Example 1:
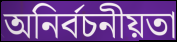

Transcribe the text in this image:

অনির্বচনীয়তা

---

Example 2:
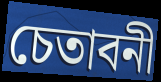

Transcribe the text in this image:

চেতাবনী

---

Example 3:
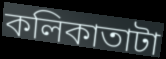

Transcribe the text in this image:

কলিকাতাটা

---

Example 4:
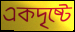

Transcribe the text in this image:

একদৃষ্টে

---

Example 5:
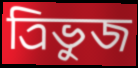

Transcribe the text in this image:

ত্রিভুজ